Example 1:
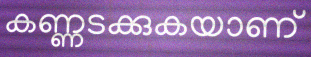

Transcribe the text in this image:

കണ്ണടക്കുകയാണ്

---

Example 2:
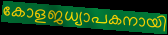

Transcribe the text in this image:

കോളജധ്യാപകനായി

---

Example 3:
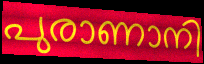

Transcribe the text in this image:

പുരാണാനി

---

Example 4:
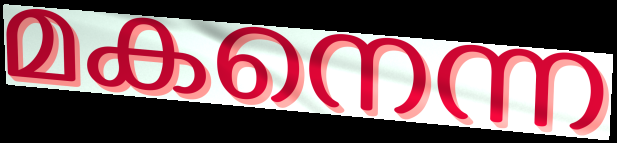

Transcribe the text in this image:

മകനെന്ന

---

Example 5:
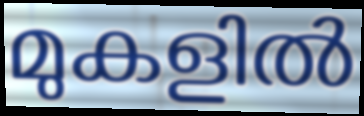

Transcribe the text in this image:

മുകളിൽ